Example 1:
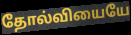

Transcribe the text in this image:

தோல்வியையே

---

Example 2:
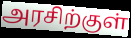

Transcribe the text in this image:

அரசிற்குள்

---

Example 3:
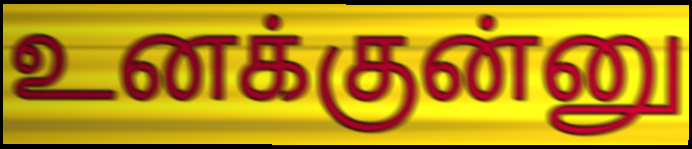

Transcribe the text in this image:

உனக்குன்னு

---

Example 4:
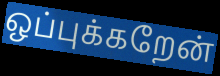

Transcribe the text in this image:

ஒப்புக்கறேன்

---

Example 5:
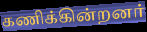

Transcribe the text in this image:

கணிக்கின்றனர்